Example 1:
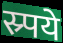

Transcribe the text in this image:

स्र्पये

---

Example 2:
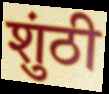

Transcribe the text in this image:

शुंठी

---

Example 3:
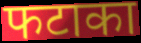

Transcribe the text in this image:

फटाका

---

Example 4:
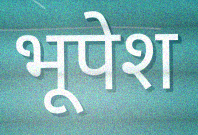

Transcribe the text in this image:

भूपेश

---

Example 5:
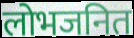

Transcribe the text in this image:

लोभजनित